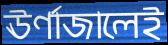
ঊর্ণাজালেই